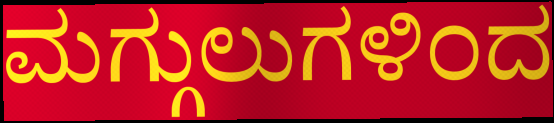
ಮಗ್ಗುಲುಗಳಿಂದ